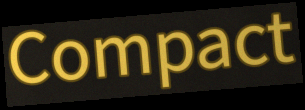
Compact